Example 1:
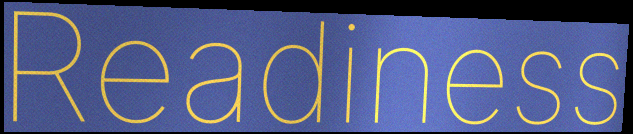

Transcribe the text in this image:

Readiness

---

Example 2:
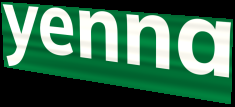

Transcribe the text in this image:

yenna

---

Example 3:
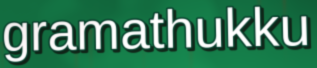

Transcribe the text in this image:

gramathukku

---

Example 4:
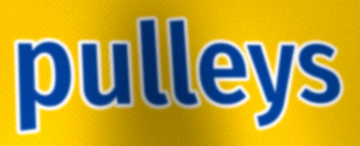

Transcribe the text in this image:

pulleys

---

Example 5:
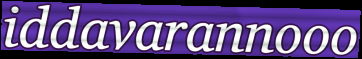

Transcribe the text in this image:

iddavarannooo